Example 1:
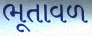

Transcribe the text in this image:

ભૂતાવળ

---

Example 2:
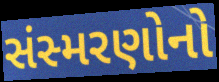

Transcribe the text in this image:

સંસ્મરણોનો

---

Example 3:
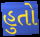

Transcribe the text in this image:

હુતો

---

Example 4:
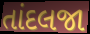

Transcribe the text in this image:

તાંદલજા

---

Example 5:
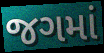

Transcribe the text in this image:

જગમાં